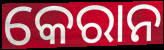
କେରାନ